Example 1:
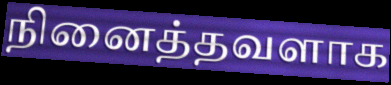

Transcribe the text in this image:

நினைத்தவளாக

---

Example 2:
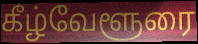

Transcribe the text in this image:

கீழ்வேளூரை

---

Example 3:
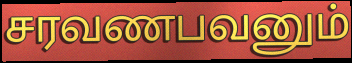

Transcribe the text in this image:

சரவணபவனும்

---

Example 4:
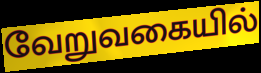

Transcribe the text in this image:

வேறுவகையில்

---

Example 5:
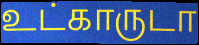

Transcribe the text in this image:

உட்காருடா